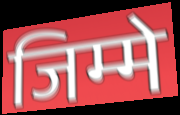
जिम्मे